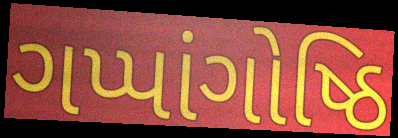
ગપ્પાંગોષ્ઠિ